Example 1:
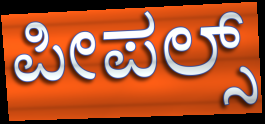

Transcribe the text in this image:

ಪೀಪಲ್ಸ್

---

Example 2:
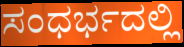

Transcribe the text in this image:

ಸಂಧರ್ಭದಲ್ಲಿ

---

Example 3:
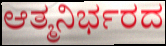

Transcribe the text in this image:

ಆತ್ಮನಿರ್ಭರದ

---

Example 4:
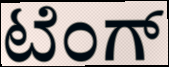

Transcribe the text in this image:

ಟೆಂಗ್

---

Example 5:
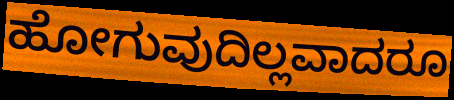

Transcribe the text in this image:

ಹೋಗುವುದಿಲ್ಲವಾದರೂ